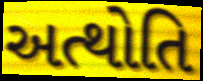
અત્થોતિ